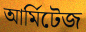
আর্মিটেজ